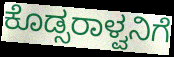
ಕೊಡ್ಸರಾಳ್ವನಿಗೆ